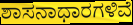
ಶಾಸನಾಧಾರಗಳಿವೆ